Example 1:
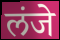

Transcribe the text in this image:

लंजे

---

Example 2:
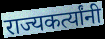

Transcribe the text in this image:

राज्यकर्त्यांनी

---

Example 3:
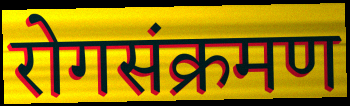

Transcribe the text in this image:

रोगसंक्रमण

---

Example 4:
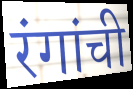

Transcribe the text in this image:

रंगांची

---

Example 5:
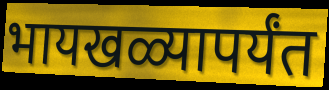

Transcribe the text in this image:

भायखळ्यापर्यंत